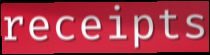
receipts